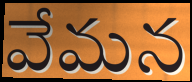
వేమన